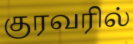
குரவரில்